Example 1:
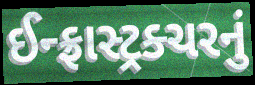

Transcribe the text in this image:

ઈન્ફ્રાસ્ટ્રક્ચરનું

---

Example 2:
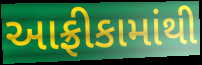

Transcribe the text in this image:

આફ્રીકામાંથી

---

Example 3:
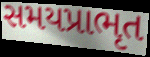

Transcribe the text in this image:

સમયપ્રાભૃત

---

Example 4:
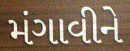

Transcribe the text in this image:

મંગાવીને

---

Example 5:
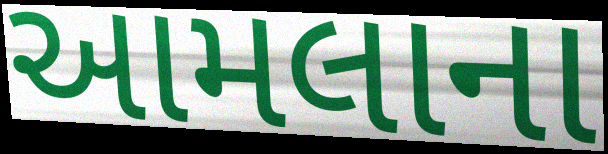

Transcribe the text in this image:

આમલાના